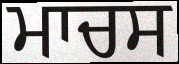
ਮਾਚਸ